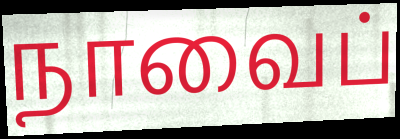
நாவைப்